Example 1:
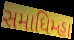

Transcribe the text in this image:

સમાધિમ્હા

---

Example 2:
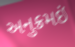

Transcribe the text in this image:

અનુક્રમઇં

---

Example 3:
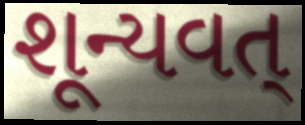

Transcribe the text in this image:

શૂન્યવત્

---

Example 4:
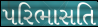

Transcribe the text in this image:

પરિભાસતિ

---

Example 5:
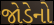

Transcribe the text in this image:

જોડેનો